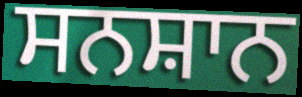
ਸਨਸ਼ਾਨ